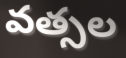
వత్సల